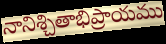
నానిశ్చితాభిప్రాయము